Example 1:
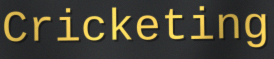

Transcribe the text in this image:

Cricketing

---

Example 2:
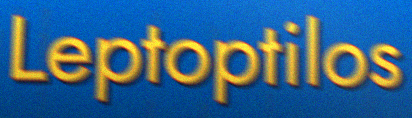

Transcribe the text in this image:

Leptoptilos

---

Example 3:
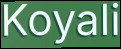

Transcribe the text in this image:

Koyali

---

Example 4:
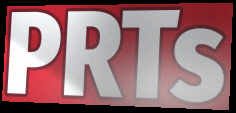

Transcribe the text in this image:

PRTs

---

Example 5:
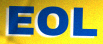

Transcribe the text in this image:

EOL